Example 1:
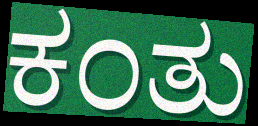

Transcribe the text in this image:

ಕಂತು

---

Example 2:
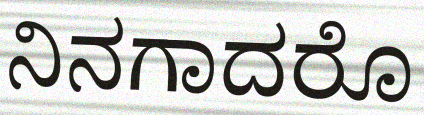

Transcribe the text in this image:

ನಿನಗಾದರೊ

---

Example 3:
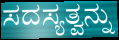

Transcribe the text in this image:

ಸದಸ್ಯತ್ವನ್ನು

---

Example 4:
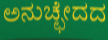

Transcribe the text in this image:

ಅನುಚ್ಛೇದದ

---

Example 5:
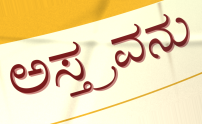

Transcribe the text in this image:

ಅಸ್ತ್ರವನು